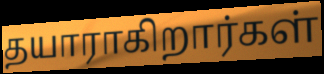
தயாராகிறார்கள்